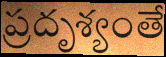
ప్రదృశ్యంతే